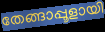
തേങ്ങാപ്പൂളായി